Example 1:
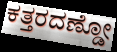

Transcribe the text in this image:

ಕತ್ತರದಣ್ಡೋ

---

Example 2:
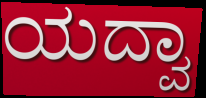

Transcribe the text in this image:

ಯದ್ವಾ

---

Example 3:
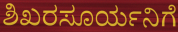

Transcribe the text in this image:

ಶಿಖರಸೂರ್ಯನಿಗೆ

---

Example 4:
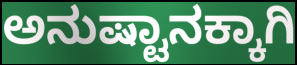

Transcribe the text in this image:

ಅನುಷ್ಟಾನಕ್ಕಾಗಿ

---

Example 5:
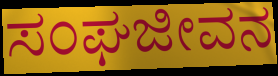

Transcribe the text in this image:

ಸಂಘಜೀವನ